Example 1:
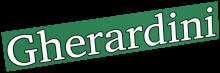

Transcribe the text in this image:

Gherardini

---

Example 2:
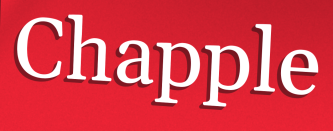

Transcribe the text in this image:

Chapple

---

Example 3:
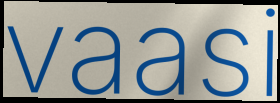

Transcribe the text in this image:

vaasi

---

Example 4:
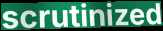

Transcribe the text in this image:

scrutinized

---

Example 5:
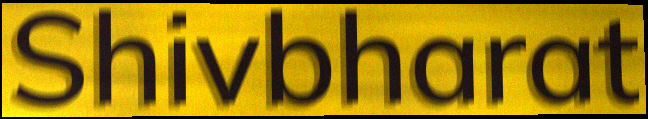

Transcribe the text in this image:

Shivbharat